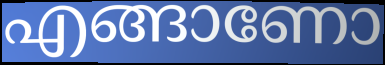
എങ്ങാണോ